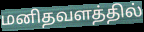
மனிதவளத்தில்